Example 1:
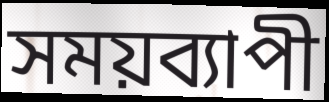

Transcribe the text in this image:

সময়ব্যাপী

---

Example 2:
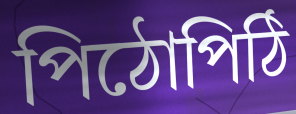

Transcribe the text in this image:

পিঠোপিঠি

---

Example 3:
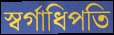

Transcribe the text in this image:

স্বর্গাধিপতি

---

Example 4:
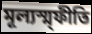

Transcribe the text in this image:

মূল্যস্ম্ফীতি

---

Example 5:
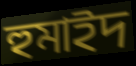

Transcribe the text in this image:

হুমাইদ